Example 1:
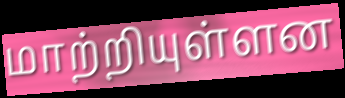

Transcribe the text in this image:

மாற்றியுள்ளன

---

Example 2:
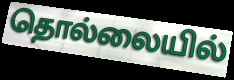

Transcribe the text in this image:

தொல்லையில்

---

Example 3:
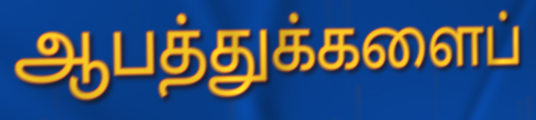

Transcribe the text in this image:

ஆபத்துக்களைப்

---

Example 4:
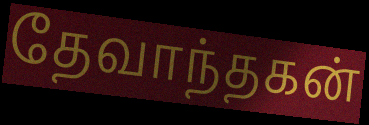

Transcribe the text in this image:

தேவாந்தகன்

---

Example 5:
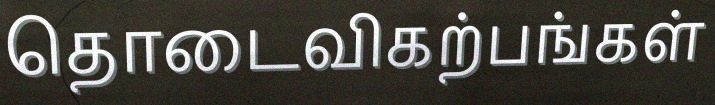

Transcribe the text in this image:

தொடைவிகற்பங்கள்